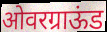
ओवरग्राऊंड